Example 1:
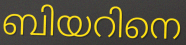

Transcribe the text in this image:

ബിയറിനെ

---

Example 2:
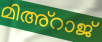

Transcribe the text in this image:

മിഅ്റാജ്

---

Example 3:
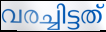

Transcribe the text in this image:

വരച്ചിട്ടത്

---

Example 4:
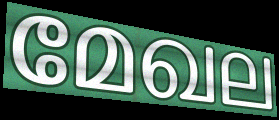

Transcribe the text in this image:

മേഖല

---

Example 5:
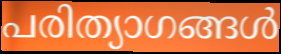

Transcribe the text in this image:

പരിത്യാഗങ്ങൾ